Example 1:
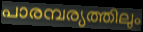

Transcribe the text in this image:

പാരമ്പര്യത്തിലും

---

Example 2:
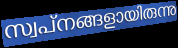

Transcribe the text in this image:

സ്വപ്‌നങ്ങളായിരുന്നു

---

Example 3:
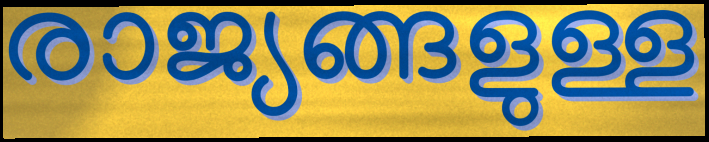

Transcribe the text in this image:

രാജ്യങ്ങളുള്ള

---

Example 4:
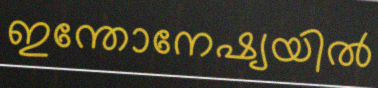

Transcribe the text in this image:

ഇന്തോനേഷ്യയിൽ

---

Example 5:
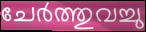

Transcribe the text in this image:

ചേർത്തുവച്ചു